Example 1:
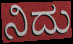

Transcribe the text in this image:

ನಿದು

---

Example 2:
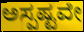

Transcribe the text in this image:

ಅಸ್ಪಷ್ಟವೇ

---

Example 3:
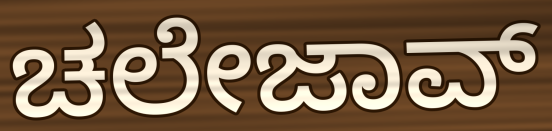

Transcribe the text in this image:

ಚಲೇಜಾವ್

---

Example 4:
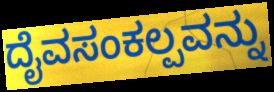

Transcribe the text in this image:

ದೈವಸಂಕಲ್ಪವನ್ನು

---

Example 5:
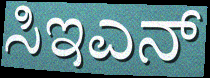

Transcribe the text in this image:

ಸಿಇಎನ್